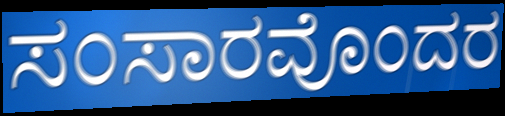
ಸಂಸಾರವೊಂದರ